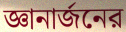
জ্ঞানার্জনের